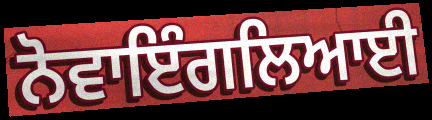
ਨੋਵਾਇੰਗਲਿਆਈ